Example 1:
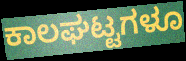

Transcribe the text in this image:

ಕಾಲಘಟ್ಟಗಳೂ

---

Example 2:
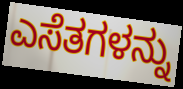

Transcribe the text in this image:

ಎಸೆತಗಳನ್ನು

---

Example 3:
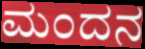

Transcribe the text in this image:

ಮಂದನ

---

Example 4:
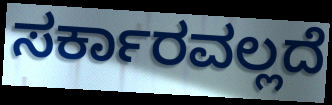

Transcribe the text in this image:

ಸರ್ಕಾರವಲ್ಲದೆ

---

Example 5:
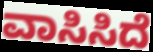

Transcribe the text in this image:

ವಾಸಿಸಿದೆ